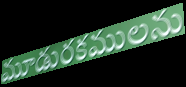
మూడురకములను